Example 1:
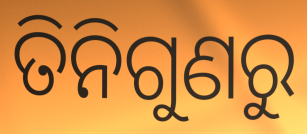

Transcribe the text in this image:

ତିନିଗୁଣରୁ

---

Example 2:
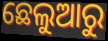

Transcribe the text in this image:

ଛେଲୁଆରୁ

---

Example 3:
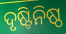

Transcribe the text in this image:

ଦୃଷ୍ଟିନିଷ୍ଠ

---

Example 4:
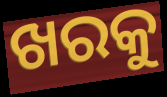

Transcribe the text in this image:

ଖରକୁ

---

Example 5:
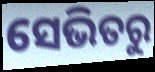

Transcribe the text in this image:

ସେଭିତରୁ